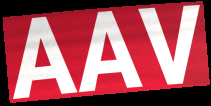
AAV